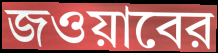
জওয়াবের